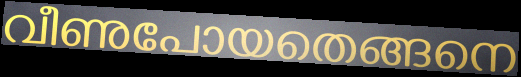
വീണുപോയതെങ്ങനെ